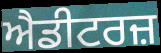
ਐਡੀਟਰਜ਼